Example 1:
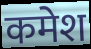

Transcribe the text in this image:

कमेश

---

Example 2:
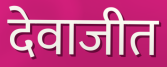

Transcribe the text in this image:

देवाजीत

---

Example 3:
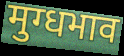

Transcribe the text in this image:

मुग्धभाव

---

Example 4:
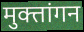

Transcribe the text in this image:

मुक्तांगन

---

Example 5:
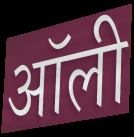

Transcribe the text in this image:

ऑली